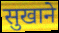
सुखाने